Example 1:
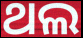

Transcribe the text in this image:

ଥଲ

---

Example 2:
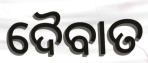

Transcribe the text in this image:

ଦୈବାତ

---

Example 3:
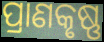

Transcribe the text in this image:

ପ୍ରାଣକୃଷ୍ଣ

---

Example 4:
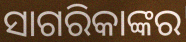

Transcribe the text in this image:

ସାଗରିକାଙ୍କର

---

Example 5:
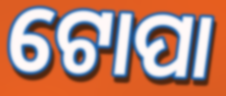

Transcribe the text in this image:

ଟୋପା